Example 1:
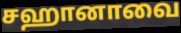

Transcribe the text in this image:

சஹானாவை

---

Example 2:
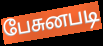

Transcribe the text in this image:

பேசுனபடி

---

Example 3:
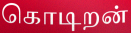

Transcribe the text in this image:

கொடிறன்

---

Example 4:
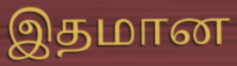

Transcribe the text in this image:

இதமான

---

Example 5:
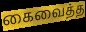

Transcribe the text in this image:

கைவைத்த